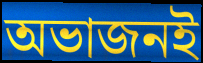
অভাজনই